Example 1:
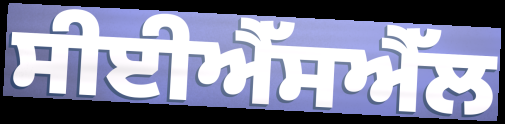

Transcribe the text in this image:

ਸੀਈਐੱਸਐੱਲ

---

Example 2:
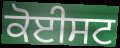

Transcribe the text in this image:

ਕੋਈਸਟ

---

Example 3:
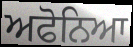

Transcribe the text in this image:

ਅਫੋਨਿਆ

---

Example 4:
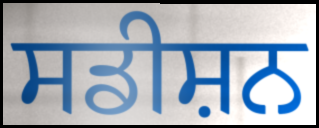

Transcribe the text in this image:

ਸਡੀਸ਼ਨ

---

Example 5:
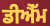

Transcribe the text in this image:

ਡੀਐੱਮ